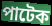
পাটেক